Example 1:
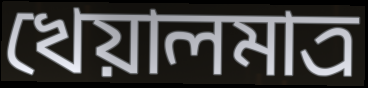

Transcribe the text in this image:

খেয়ালমাত্র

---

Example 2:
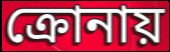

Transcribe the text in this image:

ক্রোনায়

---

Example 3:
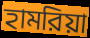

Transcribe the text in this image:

হামরিয়া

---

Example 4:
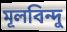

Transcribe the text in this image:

মূলবিন্দু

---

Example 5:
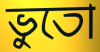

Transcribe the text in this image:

ভুতো